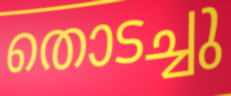
തൊടച്ചു